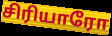
சிரியாரோ